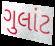
ગુલાંટ